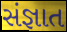
સંજ્ઞાત